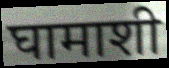
घामाशी